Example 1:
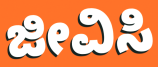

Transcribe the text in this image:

ಜೀವಿಸಿ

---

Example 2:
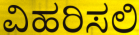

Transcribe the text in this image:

ವಿಹರಿಸಲಿ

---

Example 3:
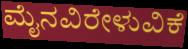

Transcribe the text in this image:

ಮೈನವಿರೇಳುವಿಕೆ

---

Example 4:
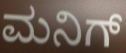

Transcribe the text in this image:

ಮನಿಗ್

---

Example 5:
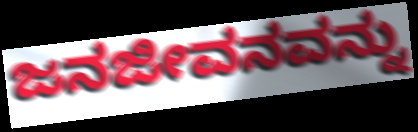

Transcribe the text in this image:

ಜನಜೀವನವನ್ನು